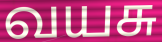
வயசு